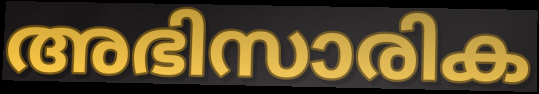
അഭിസാരിക